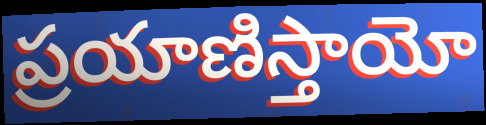
ప్రయాణిస్తాయో